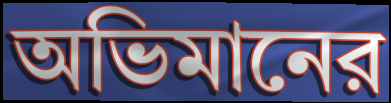
অভিমানের